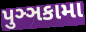
પુઞ્ઞકામા